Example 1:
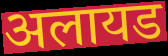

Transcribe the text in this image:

अलायड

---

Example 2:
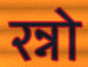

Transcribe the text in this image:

रन्नो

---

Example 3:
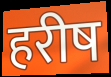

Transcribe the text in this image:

हरीष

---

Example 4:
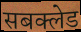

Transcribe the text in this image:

सबक्लेड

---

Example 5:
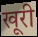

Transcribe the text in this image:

खूरी